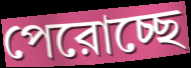
পেরোচ্ছে